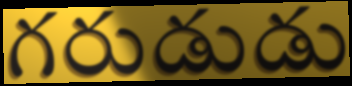
గరుడుడు